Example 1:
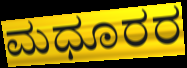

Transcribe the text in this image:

ಮಧೂರರ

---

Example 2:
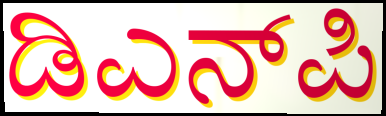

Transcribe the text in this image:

ಡಿಎನ್‌ಪಿ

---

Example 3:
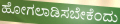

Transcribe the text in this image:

ಹೋಗಲಾಡಿಸಬೇಕೆಂದು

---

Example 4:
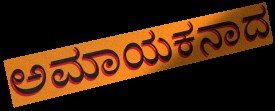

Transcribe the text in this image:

ಅಮಾಯಕನಾದ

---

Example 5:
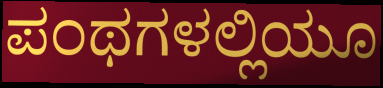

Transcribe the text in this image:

ಪಂಥಗಳಲ್ಲಿಯೂ